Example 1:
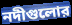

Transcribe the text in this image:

নদীগুলোর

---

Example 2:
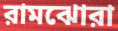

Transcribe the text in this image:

রামঝোরা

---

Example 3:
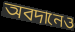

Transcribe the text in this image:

অবদানেও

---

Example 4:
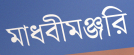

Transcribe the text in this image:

মাধবীমঞ্জরি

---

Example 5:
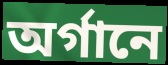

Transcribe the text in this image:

অর্গানে